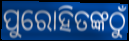
ପୁରୋହିତଙ୍କଠୁଁ